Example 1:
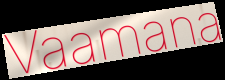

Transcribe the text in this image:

Vaamana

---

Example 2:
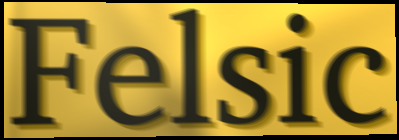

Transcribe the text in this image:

Felsic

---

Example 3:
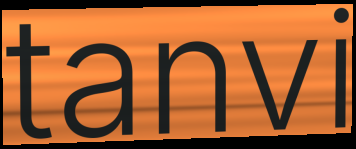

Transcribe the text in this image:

tanvi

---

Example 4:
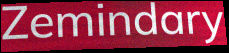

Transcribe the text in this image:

Zemindary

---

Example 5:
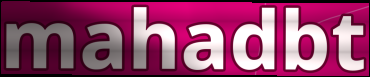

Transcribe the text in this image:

mahadbt